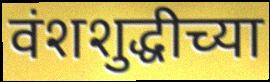
वंशशुद्धीच्या